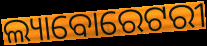
ଲ୍ୟାବୋରେଟରୀ